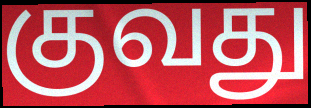
குவது